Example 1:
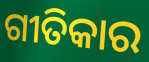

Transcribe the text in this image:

ଗୀତିକାର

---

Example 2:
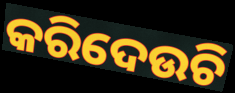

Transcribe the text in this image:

କରିଦେଉଚି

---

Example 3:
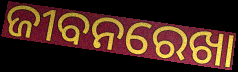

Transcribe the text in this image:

ଜୀବନରେଖା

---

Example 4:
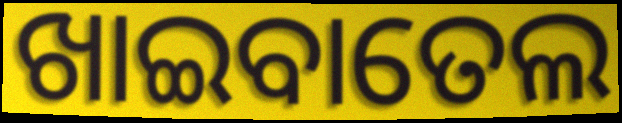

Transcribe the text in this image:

ଖାଇବାତେଲ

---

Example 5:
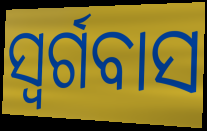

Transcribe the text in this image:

ସ୍ଵର୍ଗବାସ